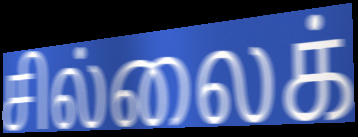
சில்லைக்